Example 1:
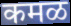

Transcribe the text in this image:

कमळ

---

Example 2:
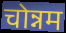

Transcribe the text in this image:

चोन्नम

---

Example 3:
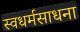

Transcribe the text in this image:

स्वधर्मसाधना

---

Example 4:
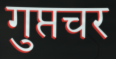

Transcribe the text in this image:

गुप्तचर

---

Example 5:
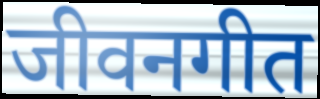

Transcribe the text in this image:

जीवनगीत